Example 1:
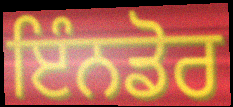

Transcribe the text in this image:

ਇੰਨਡੋਰ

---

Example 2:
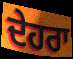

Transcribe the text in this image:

ਦੇਹਰਾ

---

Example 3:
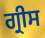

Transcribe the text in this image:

ਗ੍ਰੀਸ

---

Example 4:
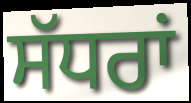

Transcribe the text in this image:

ਸੱਧਰਾਂ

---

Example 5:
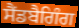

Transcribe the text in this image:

ਸੈਂਡਬੈਗਿੰਗ